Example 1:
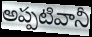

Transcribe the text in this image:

అప్పటివానీ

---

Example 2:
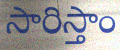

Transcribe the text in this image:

సారిస్తాం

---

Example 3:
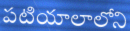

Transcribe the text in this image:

పటియాలాలోని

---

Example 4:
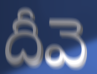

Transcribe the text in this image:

దీవె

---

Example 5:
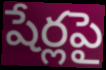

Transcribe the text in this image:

షేర్లపై